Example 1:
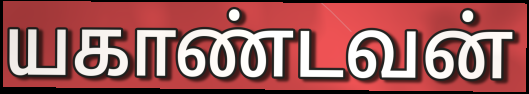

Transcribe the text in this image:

யகாண்டவன்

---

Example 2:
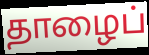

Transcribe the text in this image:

தாழைப்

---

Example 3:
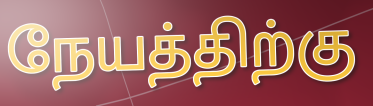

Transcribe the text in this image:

நேயத்திற்கு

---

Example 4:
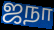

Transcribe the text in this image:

ஜநா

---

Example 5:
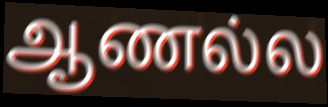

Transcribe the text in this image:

ஆணல்ல